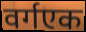
वर्गएक